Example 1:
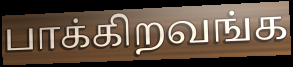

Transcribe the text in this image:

பாக்கிறவங்க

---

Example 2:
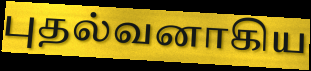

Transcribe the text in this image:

புதல்வனாகிய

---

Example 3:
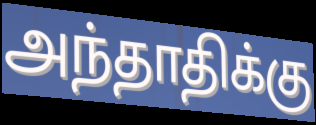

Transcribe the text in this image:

அந்தாதிக்கு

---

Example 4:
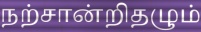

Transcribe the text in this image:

நற்சான்றிதழும்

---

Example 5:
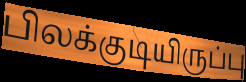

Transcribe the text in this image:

பிலக்குடியிருப்பு